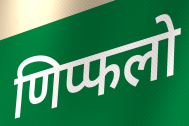
णिप्फलो